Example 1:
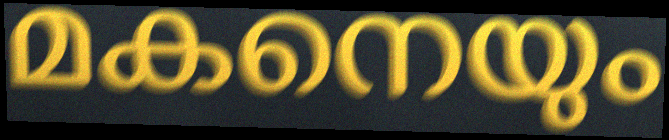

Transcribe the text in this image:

മകനെയും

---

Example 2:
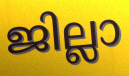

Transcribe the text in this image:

ജില്ലാ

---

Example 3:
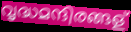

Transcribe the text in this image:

വൃദ്ധമന്ദിരങ്ങള്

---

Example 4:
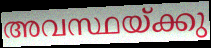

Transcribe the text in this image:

അവസ്ഥയ്ക്കു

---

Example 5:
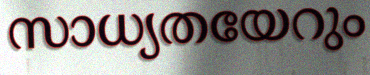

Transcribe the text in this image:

സാധ്യതയേറും